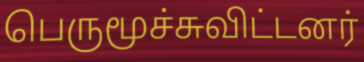
பெருமூச்சுவிட்டனர்